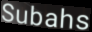
Subahs